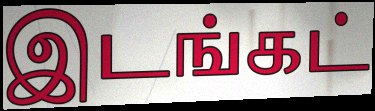
இடங்கட்